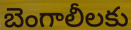
బెంగాలీలకు